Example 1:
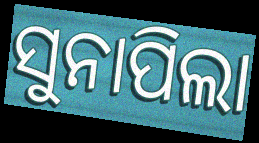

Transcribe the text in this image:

ସୁନାପିଲା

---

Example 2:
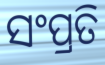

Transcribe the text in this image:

ସଂପ୍ରତି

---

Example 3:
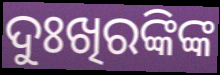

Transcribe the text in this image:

ଦୁଃଖିରଙ୍କିଙ୍କ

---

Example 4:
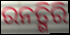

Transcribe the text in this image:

ରନତ୍ଗିରି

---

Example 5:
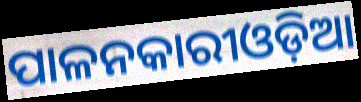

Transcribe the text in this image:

ପାଳନକାରୀଓଡ଼ିଆ